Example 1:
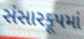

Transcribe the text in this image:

સંસારકૂપમાં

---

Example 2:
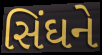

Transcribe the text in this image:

સિંઘને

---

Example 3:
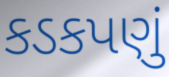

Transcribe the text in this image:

કડકપણું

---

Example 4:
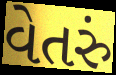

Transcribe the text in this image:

વેતરું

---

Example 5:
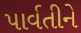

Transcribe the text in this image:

પાર્વતીને